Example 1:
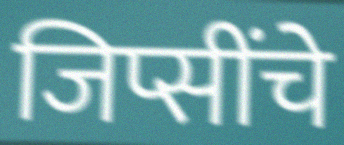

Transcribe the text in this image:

जिप्सींचे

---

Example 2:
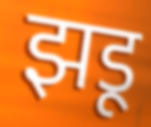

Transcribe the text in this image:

झडू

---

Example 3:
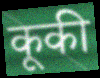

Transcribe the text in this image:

कूकी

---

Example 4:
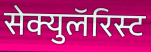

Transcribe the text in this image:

सेक्युलॅरिस्ट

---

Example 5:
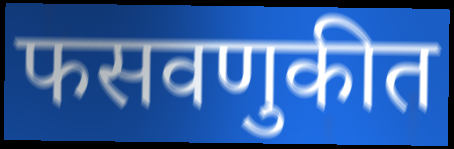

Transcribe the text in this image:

फसवणुकीत